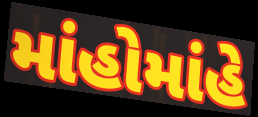
માંહોમાંહે